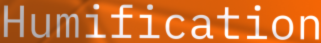
Humification